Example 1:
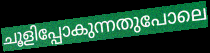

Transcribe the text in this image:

ചൂളിപ്പോകുന്നതുപോലെ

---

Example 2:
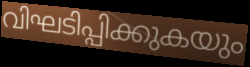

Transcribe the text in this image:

വിഘടിപ്പിക്കുകയും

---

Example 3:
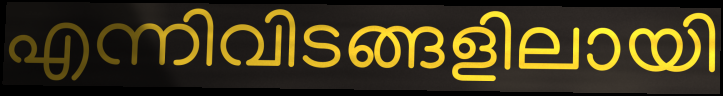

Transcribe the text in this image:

എന്നിവിടങ്ങളിലായി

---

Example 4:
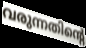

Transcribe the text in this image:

വരുന്നതിന്റെ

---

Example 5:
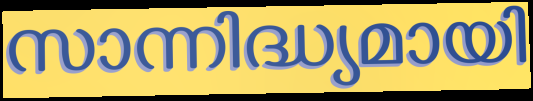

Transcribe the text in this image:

സാന്നിദ്ധ്യമായി